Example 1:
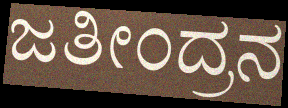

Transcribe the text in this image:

ಜತೀಂದ್ರನ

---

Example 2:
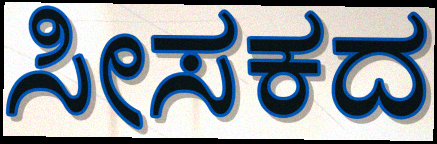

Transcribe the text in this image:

ಸೀಸಕದ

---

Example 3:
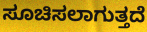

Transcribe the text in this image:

ಸೂಚಿಸಲಾಗುತ್ತದೆ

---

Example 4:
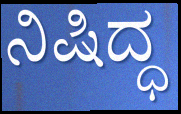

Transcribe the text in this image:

ನಿಷಿದ್ಧ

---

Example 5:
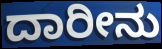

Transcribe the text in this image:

ದಾರೀನು